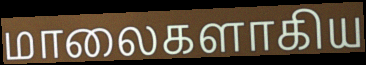
மாலைகளாகிய